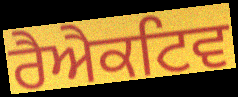
ਰੈਐਕਟਿਵ